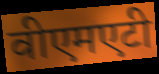
वीएमएटी